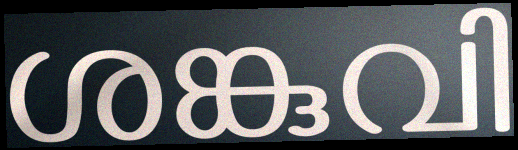
ശങ്കുവി